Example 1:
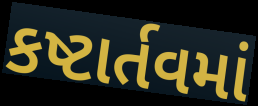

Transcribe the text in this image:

કષ્ટાર્તવમાં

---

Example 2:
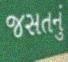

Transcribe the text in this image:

જસતનું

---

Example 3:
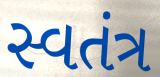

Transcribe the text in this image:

સ્વતંત્ર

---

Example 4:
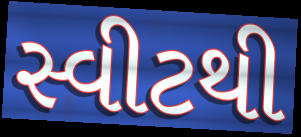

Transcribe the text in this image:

સ્વીટથી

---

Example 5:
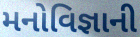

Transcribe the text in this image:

મનોવિજ્ઞાની